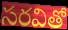
సరవితో